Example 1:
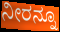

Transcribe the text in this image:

ನೀರನ್ನೂ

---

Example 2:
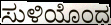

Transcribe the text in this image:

ಸುಳಿಯೊಂದ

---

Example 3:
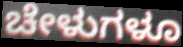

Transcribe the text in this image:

ಚೇಳುಗಳೂ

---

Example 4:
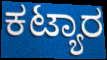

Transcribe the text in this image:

ಕಟ್ಯಾರ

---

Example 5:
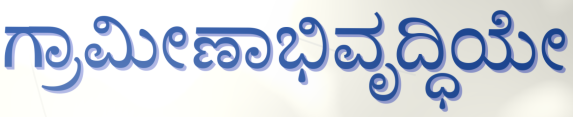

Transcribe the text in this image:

ಗ್ರಾಮೀಣಾಭಿವೃದ್ಧಿಯೇ